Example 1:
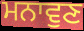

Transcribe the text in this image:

ਮਨਾਵੁਣ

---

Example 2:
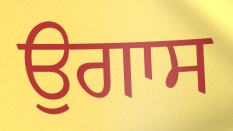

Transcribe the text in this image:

ਉਗਾਸ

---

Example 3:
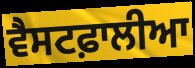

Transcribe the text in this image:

ਵੈਸਟਫ਼ਾਲੀਆ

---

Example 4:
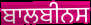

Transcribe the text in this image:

ਬਾਲਬੀਨਸ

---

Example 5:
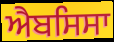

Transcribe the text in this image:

ਐਬਸਿਸਾ